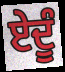
ਏਦੂੰ